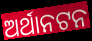
ଅର୍ଥାନଟନ